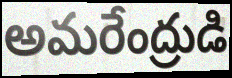
అమరేంద్రుడి